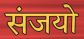
संजयो